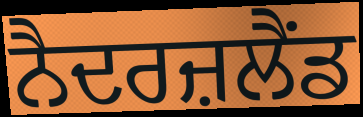
ਨੈਦਰਜ਼ਲੈਂਡ